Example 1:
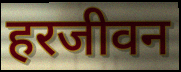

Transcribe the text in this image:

हरजीवन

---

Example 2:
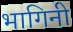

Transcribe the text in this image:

भागिनी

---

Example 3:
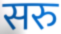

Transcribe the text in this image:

सरु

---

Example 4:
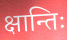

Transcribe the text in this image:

क्षान्तिः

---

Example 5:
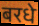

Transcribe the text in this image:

बरधे